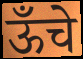
ऊँचे